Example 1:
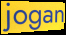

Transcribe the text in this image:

jogan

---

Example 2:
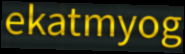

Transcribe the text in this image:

ekatmyog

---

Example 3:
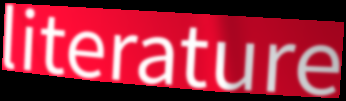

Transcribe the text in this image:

literature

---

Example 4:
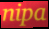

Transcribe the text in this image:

nipa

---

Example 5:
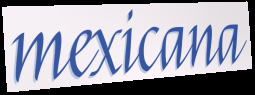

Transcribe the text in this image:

mexicana